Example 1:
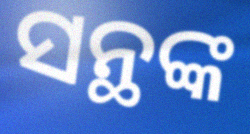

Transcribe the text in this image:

ସନ୍ଥଙ୍କ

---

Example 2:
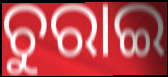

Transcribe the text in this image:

ଚୁରାଇ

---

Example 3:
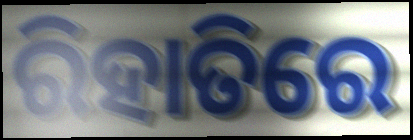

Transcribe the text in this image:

ରିହାତିରେ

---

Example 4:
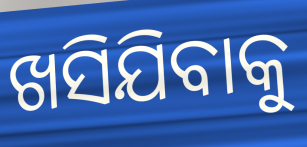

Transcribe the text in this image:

ଖସିଯିବାକୁ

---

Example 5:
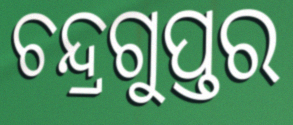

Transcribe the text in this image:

ଚନ୍ଦ୍ରଗୁପ୍ତର